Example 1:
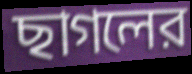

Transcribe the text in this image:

ছাগলের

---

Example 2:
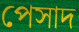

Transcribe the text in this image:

পেসাদ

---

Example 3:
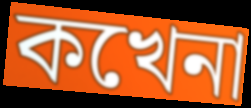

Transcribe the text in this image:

কখেনা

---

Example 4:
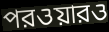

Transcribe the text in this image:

পরওয়ারও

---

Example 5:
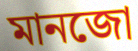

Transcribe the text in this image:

মানজো